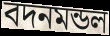
বদনমন্ডল